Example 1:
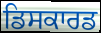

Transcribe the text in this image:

ਡਿਸਕਾਰਡ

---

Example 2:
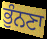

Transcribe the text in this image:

ਭੁੰਨਣਾ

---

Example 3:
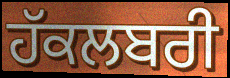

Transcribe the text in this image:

ਹੱਕਲਬਰੀ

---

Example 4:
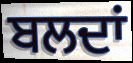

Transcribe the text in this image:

ਬਲਦਾਂ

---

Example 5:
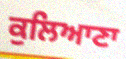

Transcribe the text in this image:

ਕੁਲਿਆਣਾ